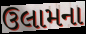
ઉલામના